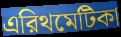
এরিথমেটিকা